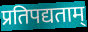
प्रतिपद्यताम्